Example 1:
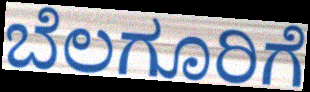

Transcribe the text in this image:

ಬೆಲಗೂರಿಗೆ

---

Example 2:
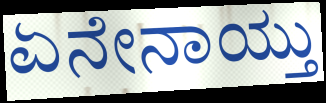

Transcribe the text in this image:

ಏನೇನಾಯ್ತು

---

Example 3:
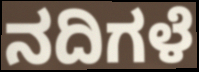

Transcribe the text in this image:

ನದಿಗಳೆ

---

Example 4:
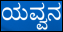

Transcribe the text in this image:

ಯವ್ವನ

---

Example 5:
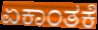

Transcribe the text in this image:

ಏಕಾಂತಕೆ